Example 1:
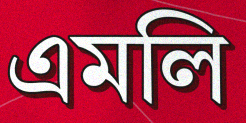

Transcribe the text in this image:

এমলি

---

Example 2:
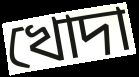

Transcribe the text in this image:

খোদা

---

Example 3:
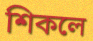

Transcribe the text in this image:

শিকলে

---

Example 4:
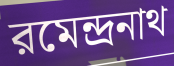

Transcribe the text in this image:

রমেন্দ্রনাথ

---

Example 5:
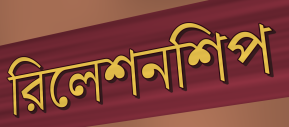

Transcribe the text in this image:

রিলেশনশিপ